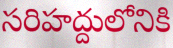
సరిహద్దులోనికి